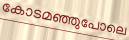
കോടമഞ്ഞുപോലെ